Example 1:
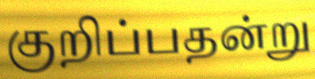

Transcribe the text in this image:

குறிப்பதன்று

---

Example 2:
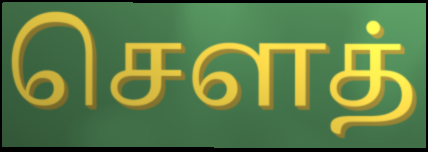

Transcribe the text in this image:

சௌத்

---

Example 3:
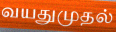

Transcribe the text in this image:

வயதுமுதல்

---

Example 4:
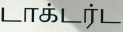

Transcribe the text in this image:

டாக்டர்ட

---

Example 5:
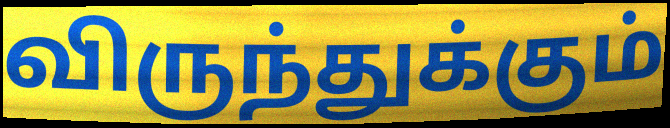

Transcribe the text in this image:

விருந்துக்கும்